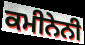
ਕਮੀਨੇਨੀ